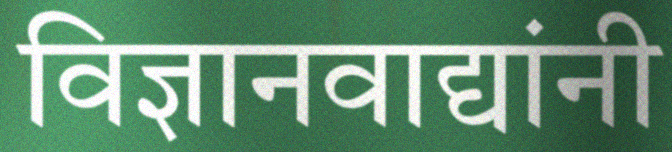
विज्ञानवाद्यांनी